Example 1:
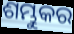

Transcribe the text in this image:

ଶମ୍ଭୁକର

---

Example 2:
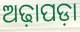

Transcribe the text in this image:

ଅଢ଼ାପଡ଼ା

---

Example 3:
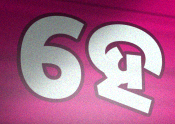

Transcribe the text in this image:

ହେ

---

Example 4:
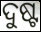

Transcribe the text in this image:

ଦୁଷ୍ଟ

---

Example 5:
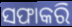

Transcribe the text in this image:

ସଫାକରି